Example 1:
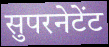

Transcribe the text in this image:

सुपरनेटेंट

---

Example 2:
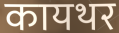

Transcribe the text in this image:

कायथर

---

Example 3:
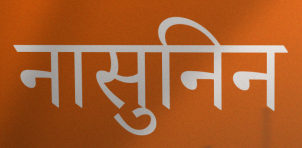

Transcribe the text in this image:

नासुनिन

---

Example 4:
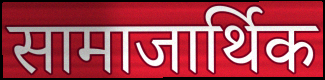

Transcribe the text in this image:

सामाजार्थिक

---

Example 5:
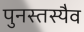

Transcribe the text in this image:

पुनस्तस्यैव